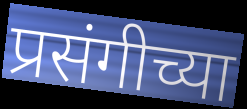
प्रसंगीच्या